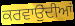
ਕਰਵਾਉੁਂਦੀਆਂ